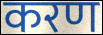
करण